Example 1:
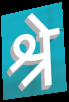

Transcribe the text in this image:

श्रे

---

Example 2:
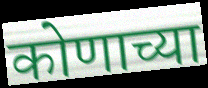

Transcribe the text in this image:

कोणाच्या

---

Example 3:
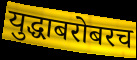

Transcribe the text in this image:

युद्धाबरोबरच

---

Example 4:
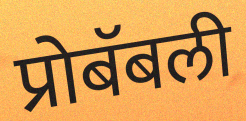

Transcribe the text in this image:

प्रोबॅबली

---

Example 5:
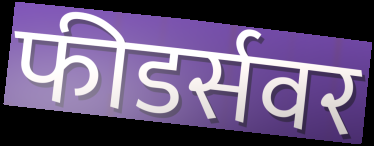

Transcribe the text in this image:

फीडर्सवर